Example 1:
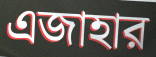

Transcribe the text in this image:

এজাহার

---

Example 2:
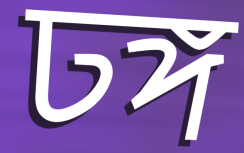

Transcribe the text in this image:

ঢঙ্গ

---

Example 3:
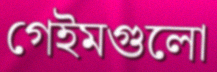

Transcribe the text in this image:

গেইমগুলো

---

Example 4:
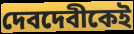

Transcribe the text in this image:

দেবদেবীকেই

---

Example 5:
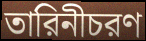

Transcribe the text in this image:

তারিনীচরণ